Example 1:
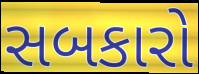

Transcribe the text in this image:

સબકારો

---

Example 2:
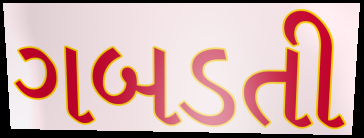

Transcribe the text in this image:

ગબડતી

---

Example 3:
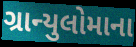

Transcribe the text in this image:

ગ્રાન્યુલોમાના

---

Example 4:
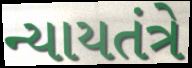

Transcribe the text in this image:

ન્યાયતંત્રે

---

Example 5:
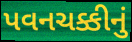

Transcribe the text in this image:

પવનચક્કીનું